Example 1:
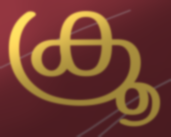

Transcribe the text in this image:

ക്രൂ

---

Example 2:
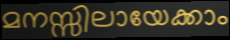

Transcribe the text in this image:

മനസ്സിലായേക്കാം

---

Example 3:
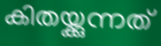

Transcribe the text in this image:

കിതയ്ക്കുന്നത്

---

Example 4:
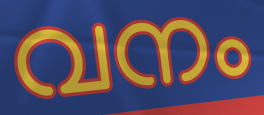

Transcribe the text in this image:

വനം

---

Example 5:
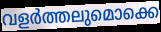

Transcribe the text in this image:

വളർത്തലുമൊക്കെ